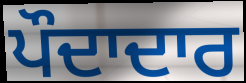
ਪੌਦਾਦਾਰ